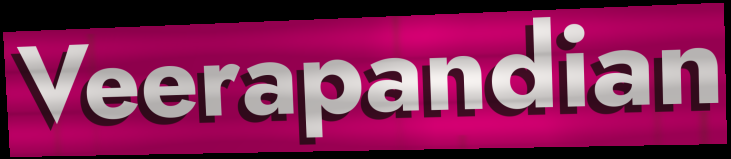
Veerapandian